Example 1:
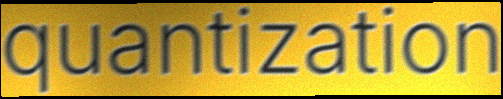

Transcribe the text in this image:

quantization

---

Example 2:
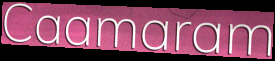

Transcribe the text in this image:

Caamaram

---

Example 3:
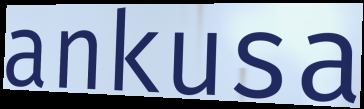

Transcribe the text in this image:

ankusa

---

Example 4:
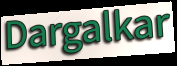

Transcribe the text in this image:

Dargalkar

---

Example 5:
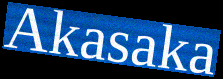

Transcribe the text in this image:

Akasaka